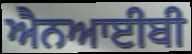
ਐਨਆਈਬੀ